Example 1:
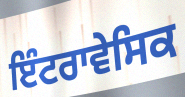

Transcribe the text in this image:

ਇੰਟਰਾਵੇਸਿਕ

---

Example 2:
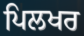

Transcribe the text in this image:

ਪਿਲਖਰ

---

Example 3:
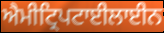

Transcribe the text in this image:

ਐਮੀਟ੍ਰਿਪਟਾਈਲਾਈਨ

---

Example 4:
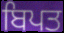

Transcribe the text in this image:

ਬਿਪਤ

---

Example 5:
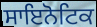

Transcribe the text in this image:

ਸਾਇਨੋਟਿਕ